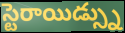
స్టెరాయిడ్స్ను